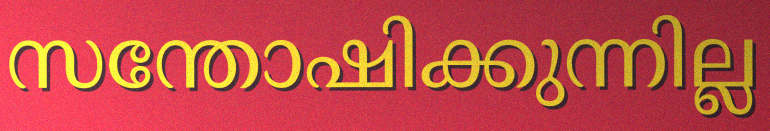
സന്തോഷിക്കുന്നില്ല